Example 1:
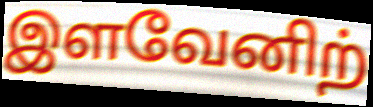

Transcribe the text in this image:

இளவேனிற்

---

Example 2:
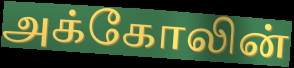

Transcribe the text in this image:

அக்கோலின்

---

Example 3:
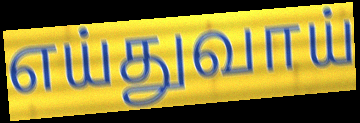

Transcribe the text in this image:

எய்துவாய்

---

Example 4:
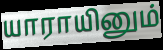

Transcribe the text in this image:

யாராயினும்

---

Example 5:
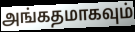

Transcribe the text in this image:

அங்கதமாகவும்